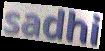
sadhi